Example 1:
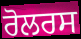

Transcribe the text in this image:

ਰੋਲਰਸ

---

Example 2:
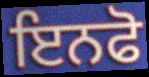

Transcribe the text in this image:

ਇਨਫੋ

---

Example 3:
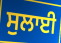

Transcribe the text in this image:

ਸੁਲਾਈ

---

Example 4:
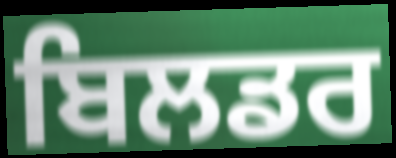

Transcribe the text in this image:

ਬਿਲਡਰ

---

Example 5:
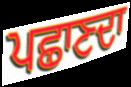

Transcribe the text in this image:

ਪਛਾਣਦਾ